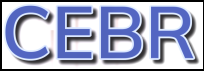
CEBR